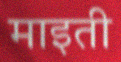
माइती